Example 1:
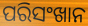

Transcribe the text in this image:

ପରିସଂଖାନ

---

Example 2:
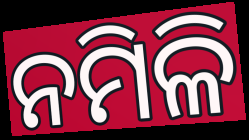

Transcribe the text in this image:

ନମିଳି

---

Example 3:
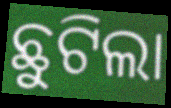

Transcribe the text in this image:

ଛୁଟିଲା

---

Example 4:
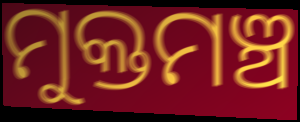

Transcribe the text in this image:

ମୁକ୍ତମଞ୍ଚ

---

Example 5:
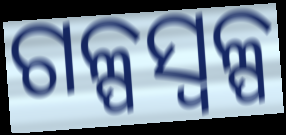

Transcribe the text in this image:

ଗଳ୍ପସ୍ୱଳ୍ପ